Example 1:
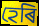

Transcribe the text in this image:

হেৰি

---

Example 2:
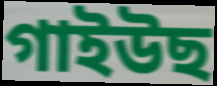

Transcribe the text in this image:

গাইউছ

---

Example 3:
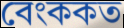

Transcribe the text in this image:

বেংককত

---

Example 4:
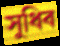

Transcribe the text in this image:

সুধিব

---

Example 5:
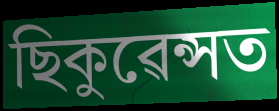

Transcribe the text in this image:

ছিকুৱেন্সত